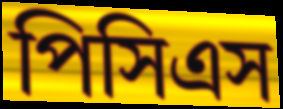
পিসিএস